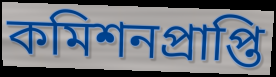
কমিশনপ্রাপ্তি